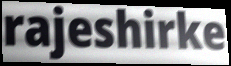
rajeshirke